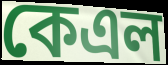
কেএল